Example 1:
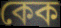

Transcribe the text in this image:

কেক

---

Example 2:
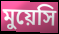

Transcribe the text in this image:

মুয়েসি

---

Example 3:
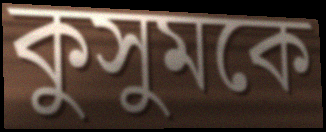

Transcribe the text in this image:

কুসুমকে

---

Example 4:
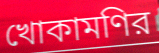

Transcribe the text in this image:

খোকামণির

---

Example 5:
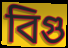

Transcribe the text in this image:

বিগু